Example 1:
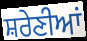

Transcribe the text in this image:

ਸ਼ਰੇਣੀਆਂ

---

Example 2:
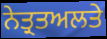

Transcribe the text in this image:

ਨੇਤ੍ਰਤਅਲਤੇ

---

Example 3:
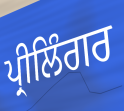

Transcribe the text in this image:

ਪ੍ਰੀਲਿੰਗਰ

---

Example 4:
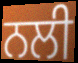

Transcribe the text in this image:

ਨਲੀ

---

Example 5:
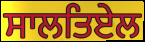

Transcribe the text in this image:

ਸਾਲਤਿਏਲ